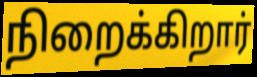
நிறைக்கிறார்